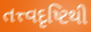
તત્ત્વદૃષ્ટિથી